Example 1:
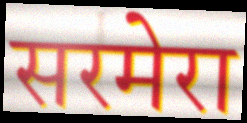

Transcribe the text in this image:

सरमेरा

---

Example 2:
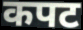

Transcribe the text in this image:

कपट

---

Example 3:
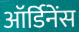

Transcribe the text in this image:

ऑर्डिनेंस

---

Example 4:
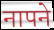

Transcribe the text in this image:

नापने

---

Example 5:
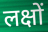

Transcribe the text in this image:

लक्षों